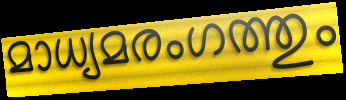
മാധ്യമരംഗത്തും